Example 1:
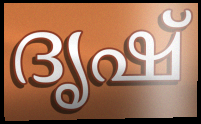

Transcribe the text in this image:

ദൃഷ്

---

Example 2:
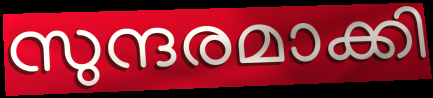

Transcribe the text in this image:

സുന്ദരമാക്കി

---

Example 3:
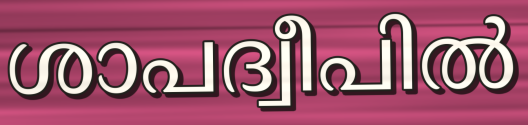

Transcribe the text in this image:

ശാപദ്വീപിൽ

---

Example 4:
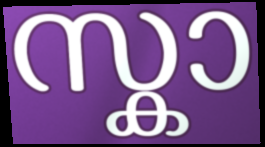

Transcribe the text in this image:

സ്കാ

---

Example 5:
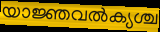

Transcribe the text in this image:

യാജ്ഞവൽക്യശ്ച